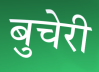
बुचेरी